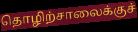
தொழிற்சாலைக்குச்